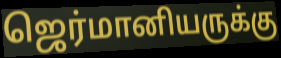
ஜெர்மானியருக்கு